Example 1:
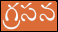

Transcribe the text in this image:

గ్రసన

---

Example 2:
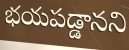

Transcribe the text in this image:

భయపడ్డానని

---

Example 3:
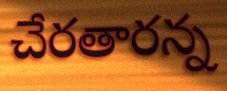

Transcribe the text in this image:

చేరతారన్న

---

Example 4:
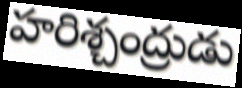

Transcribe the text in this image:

హరిశ్చంద్రుడు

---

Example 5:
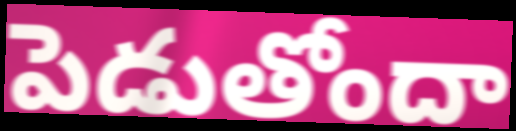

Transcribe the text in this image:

పెడుతోందా